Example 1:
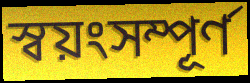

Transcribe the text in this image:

স্বয়ংসম্পূৰ্ণ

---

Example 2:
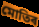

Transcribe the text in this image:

মোতিৰ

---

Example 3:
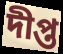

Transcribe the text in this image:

দীপ্ত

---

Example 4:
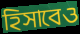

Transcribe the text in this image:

হিসাবেও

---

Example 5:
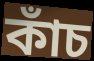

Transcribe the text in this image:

কাঁচ